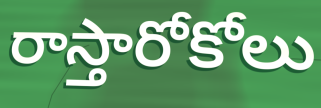
రాస్తారోకోలు